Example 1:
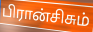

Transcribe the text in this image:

பிரான்சிசும்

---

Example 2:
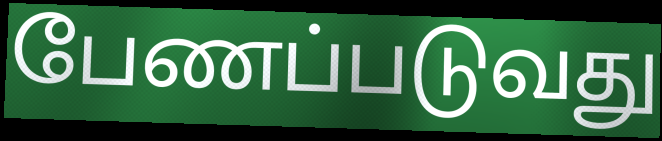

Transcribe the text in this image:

பேணப்படுவது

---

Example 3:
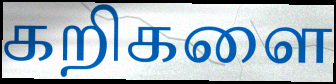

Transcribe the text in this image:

கறிகளை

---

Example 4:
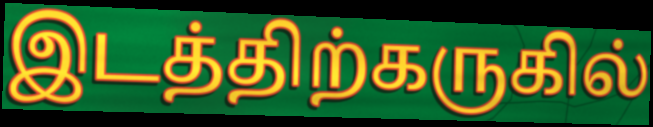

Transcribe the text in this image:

இடத்திற்கருகில்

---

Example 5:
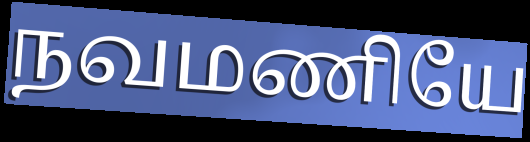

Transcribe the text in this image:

நவமணியே